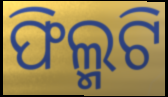
ଫିଲ୍ମଟି